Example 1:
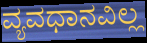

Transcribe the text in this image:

ವ್ಯವಧಾನವಿಲ್ಲ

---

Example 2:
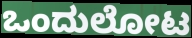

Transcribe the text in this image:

ಒಂದುಲೋಟ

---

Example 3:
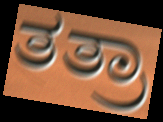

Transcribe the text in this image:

ತತ್ರಾ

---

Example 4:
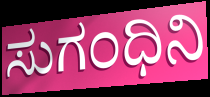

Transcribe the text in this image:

ಸುಗಂಧಿನಿ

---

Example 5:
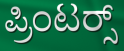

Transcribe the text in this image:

ಪ್ರಿಂಟರ‍್ಸ್